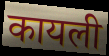
कायली